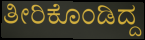
ತೀರಿಕೊಂಡಿದ್ದ